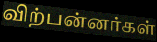
விற்பன்னர்கள்